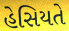
હેસિયતે